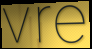
vre